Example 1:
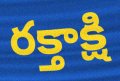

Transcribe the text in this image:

రక్తాక్షి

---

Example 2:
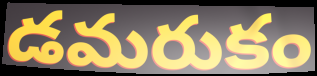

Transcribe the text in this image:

డమరుకం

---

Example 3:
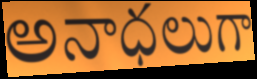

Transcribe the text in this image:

అనాధలుగా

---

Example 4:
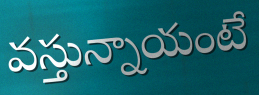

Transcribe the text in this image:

వస్తున్నాయంటే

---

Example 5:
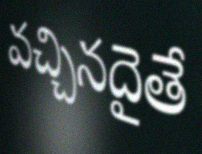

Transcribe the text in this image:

వచ్చినదైతే